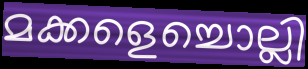
മക്കളെച്ചൊല്ലി